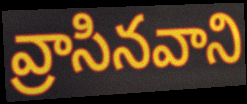
వ్రాసినవాని